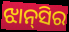
ଝାନ୍‌ସିର